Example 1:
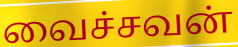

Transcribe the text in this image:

வைச்சவன்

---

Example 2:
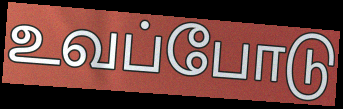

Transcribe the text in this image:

உவப்போடு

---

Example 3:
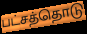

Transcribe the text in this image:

பட்சத்தொடு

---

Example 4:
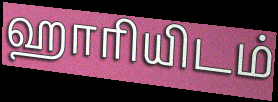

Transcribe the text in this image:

ஹாரியிடம்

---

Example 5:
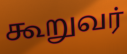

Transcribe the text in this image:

கூறுவர்